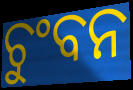
ଚୁଂବନ